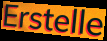
Erstelle